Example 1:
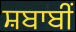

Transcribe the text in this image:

ਸ਼ਬਾਬੀਂ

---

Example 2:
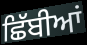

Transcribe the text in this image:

ਛਿੱਬੀਆਂ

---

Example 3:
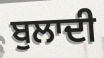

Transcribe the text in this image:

ਬੁਲਾਦੀ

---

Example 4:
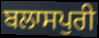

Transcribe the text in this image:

ਬਲਾਸਪੁਰੀ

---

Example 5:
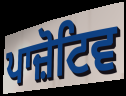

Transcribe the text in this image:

ਪਾਜ਼ੋਟਿਵ